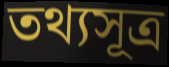
তথ্যসূত্ৰ